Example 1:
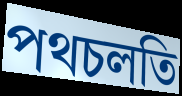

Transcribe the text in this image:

পথচলতি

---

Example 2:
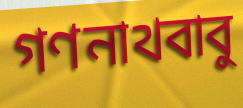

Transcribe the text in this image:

গণনাথবাবু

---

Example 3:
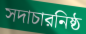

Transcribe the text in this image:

সদাচারনিষ্ঠ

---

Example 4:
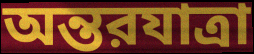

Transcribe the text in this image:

অন্তরযাত্রা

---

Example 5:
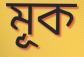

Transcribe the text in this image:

মূক